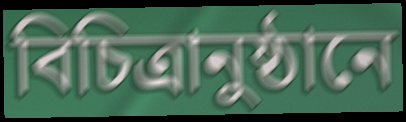
বিচিত্রানুষ্ঠানে